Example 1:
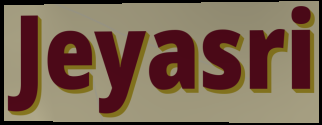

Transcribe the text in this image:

Jeyasri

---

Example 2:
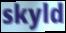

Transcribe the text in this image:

skyld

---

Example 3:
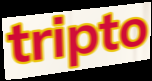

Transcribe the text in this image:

tripto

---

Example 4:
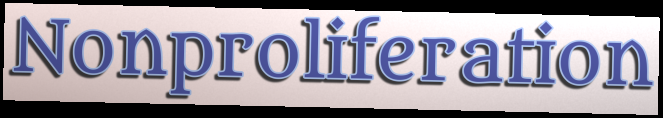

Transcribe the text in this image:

Nonproliferation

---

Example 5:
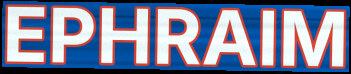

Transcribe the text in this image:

EPHRAIM